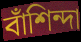
বাঁশিন্দা